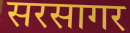
सरसागर